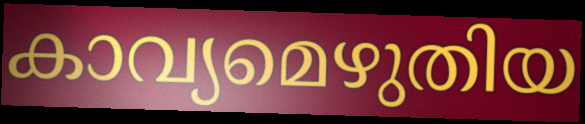
കാവ്യമെഴുതിയ